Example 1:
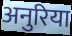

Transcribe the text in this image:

अनुरिया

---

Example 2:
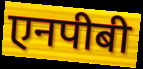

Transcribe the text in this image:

एनपीबी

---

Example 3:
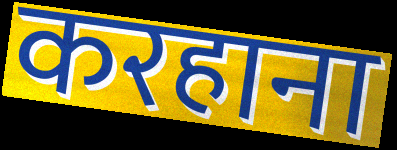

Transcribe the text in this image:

करहाना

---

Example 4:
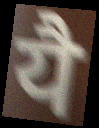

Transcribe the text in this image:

यै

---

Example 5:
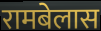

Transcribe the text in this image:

रामबेलास